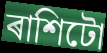
ৰাশিটো